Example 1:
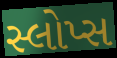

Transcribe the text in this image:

સ્લોપ્સ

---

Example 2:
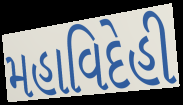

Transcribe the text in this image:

મહાવિદેહી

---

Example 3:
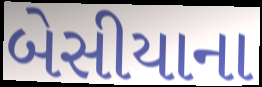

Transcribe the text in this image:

બેસીયાના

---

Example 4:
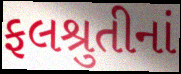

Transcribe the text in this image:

ફલશ્રુતીનાં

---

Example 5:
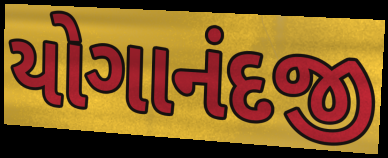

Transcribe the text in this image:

યોગાનંદજી